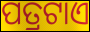
ପତ୍ରଟାଏ